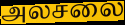
அலசலை